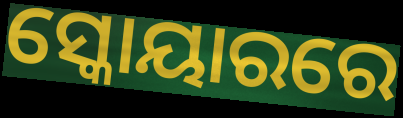
ସ୍କୋୟାରରେ